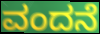
ವಂದನೆ